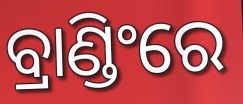
ବ୍ରାଣ୍ଡିଂରେ